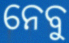
ନେବୁ